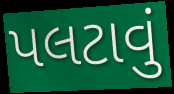
પલટાવું